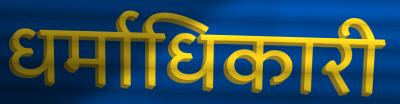
धर्माधिकारी